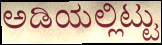
ಅಡಿಯಲ್ಲಿಟ್ಟು